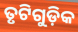
ତୃଟିଗୁଡ଼ିକ